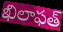
ఖిలాఫత్